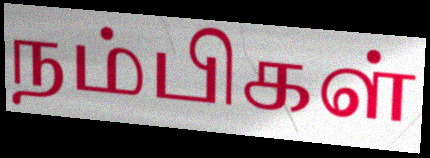
நம்பிகள்